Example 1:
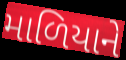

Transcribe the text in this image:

માળિયાને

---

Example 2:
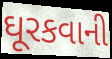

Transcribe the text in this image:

ઘૂરકવાની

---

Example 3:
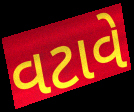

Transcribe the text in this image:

વટાવે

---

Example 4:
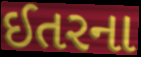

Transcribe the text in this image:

ઈતરના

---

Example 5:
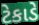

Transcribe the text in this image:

ટેકાડે